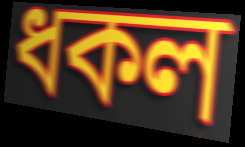
ধকল